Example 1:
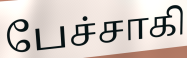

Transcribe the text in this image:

பேச்சாகி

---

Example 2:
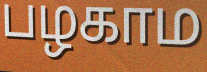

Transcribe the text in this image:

பழகாம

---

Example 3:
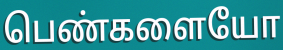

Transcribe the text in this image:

பெண்களையோ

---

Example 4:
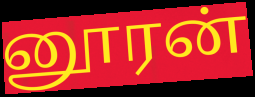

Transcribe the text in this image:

னூரன்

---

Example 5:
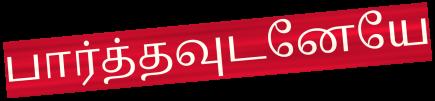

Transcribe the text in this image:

பார்த்தவுடனேயே